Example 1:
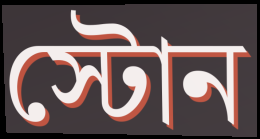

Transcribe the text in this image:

স্টোন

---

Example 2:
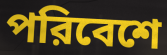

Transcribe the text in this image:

পরিবেশে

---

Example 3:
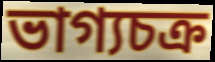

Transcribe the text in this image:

ভাগ্যচক্র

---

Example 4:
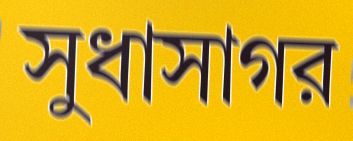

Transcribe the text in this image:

সুধাসাগর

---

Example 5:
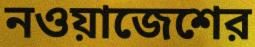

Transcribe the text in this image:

নওয়াজেশের